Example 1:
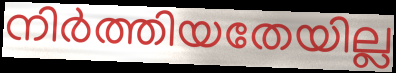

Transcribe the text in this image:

നിർത്തിയതേയില്ല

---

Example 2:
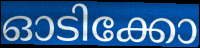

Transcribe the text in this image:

ഓടിക്കോ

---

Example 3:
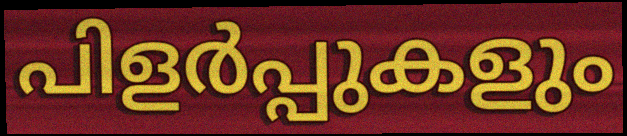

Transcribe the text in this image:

പിളർപ്പുകളും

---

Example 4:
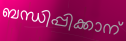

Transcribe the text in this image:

ബന്ധിപ്പിക്കാന്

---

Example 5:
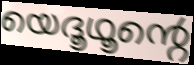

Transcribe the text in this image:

യെദൂഥൂന്റെ